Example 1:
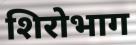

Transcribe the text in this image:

शिरोभाग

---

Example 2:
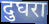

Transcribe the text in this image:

दुघरा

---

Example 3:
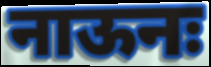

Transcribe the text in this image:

नाऊनः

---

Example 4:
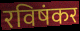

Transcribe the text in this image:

रविषंकर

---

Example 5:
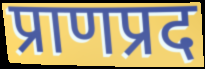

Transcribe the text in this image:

प्राणप्रद